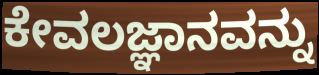
ಕೇವಲಜ್ಞಾನವನ್ನು